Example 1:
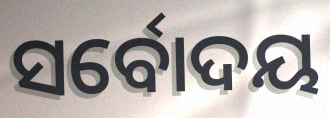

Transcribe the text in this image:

ସର୍ବୋଦୟ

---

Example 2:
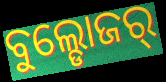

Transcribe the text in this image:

ବୁଲ୍ଡୋଜର୍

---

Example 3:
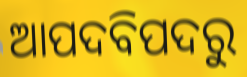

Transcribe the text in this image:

ଆପଦବିପଦରୁ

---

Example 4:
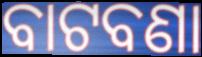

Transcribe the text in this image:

ବାଟବଣା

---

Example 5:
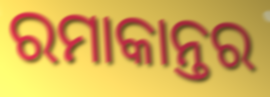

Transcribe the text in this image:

ରମାକାନ୍ତର